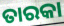
ତାରକା